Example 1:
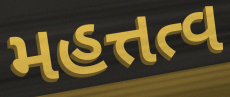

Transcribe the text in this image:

મહત્તત્વ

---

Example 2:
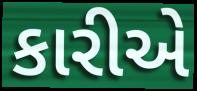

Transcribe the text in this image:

કારીએ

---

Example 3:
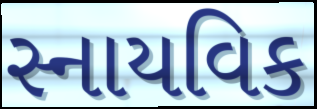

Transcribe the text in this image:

સ્નાયવિક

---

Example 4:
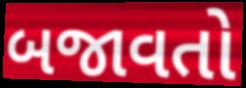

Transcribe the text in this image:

બજાવતો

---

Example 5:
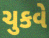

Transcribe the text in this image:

ચુકવે